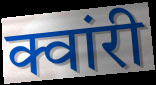
क्वांरी